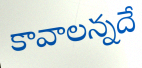
కావాలన్నదే